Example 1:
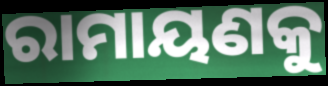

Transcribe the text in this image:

ରାମାୟଣକୁ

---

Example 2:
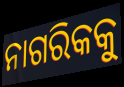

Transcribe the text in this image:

ନାଗରିକକୁ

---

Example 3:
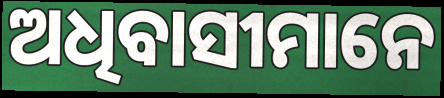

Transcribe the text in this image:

ଅଧିବାସୀମାନେ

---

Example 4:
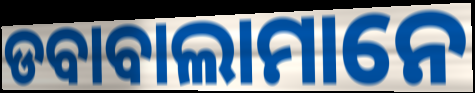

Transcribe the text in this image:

ଡବାବାଲାମାନେ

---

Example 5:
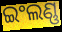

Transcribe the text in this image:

ଇଂଲଣ୍ଣ